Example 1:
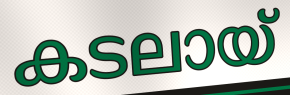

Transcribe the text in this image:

കടലായ്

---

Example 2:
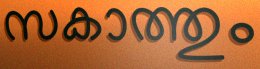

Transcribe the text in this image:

സകാത്തും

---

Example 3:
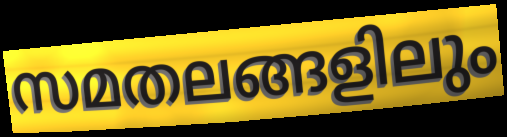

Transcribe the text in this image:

സമതലങ്ങളിലും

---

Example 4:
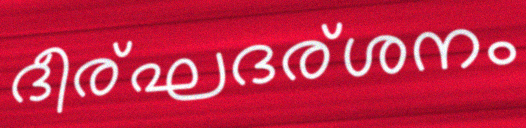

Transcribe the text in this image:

ദീര്ഘദര്ശനം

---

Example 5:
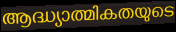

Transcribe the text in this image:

ആദ്ധ്യാത്മികതയുടെ